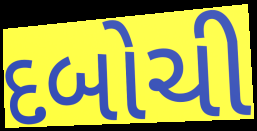
દબોચી